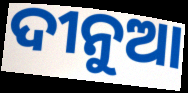
ଦୀନୁଆ